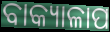
ବାକ୍ୟାଳାପ